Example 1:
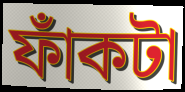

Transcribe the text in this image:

ফাঁকটা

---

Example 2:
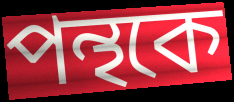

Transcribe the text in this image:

পন্থকে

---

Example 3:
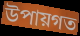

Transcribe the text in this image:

উপায়গত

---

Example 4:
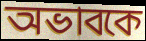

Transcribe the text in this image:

অভাবকে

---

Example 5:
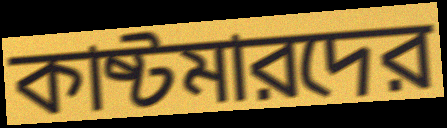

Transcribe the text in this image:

কাষ্টমারদের